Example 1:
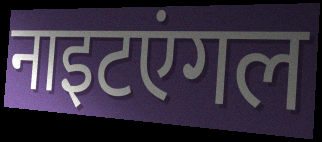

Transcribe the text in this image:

नाइटएंगल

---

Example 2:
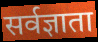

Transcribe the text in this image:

सर्वज्ञाता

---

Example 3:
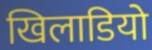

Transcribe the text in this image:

खिलाडियो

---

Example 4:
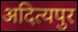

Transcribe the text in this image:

अदित्यपुर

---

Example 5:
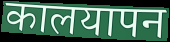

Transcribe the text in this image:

कालयापन